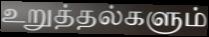
உறுத்தல்களும்